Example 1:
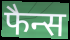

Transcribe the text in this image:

फैन्स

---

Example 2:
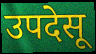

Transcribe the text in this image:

उपदेसू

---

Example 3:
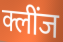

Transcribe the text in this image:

क्लींज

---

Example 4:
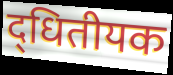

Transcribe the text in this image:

द्धितीयक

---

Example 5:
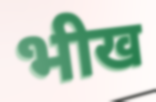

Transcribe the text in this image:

भीख